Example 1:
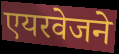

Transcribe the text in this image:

एयरवेजने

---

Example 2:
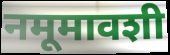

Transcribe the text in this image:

नमूमावशी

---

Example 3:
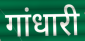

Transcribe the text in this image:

गांधारी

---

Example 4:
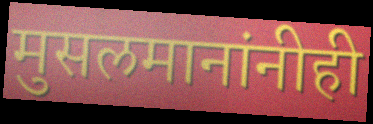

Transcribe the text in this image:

मुसलमानांनीही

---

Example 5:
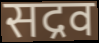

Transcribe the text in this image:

सद्रव